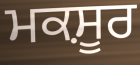
ਮਕ਼ਸੂਰ